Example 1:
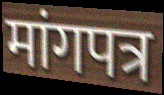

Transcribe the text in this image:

मांगपत्र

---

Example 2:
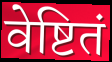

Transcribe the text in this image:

वेष्टितं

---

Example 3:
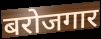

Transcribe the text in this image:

बरोजगार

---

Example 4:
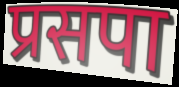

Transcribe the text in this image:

प्रसपा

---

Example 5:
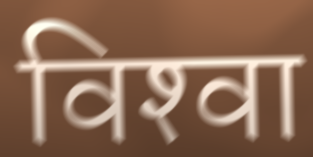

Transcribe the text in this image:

विश्‍वा